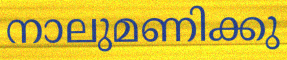
നാലുമണിക്കു